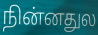
நின்னதுல